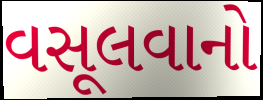
વસૂલવાનો